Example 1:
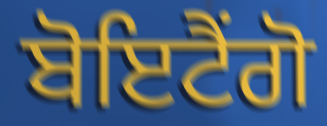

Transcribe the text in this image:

ਬੋਇਟੈਂਗੋ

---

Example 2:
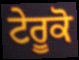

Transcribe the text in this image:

ਟੇਰੂਕੋ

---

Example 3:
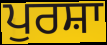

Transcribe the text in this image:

ਪੁਰਸ਼ਾ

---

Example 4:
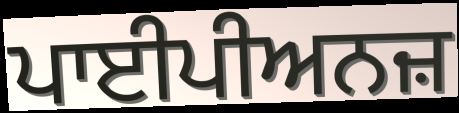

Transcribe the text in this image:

ਪਾਈਪੀਅਨਜ਼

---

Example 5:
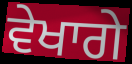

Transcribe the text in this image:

ਵੇਖਾਗੇ